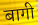
बागी